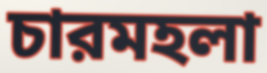
চারমহলা